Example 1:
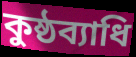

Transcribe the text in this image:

কুষ্ঠব্যাধি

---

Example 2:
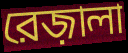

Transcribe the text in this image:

রেজ়ালা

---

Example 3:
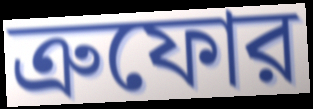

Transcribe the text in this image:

ত্রুফোর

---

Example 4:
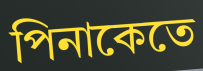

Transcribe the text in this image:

পিনাকেতে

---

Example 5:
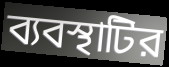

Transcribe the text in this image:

ব্যবস্থাটির